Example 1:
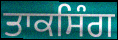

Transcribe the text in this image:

ਤਾਕਸਿੰਗ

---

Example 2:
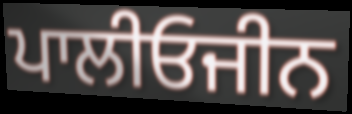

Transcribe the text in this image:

ਪਾਲੀਓਜੀਨ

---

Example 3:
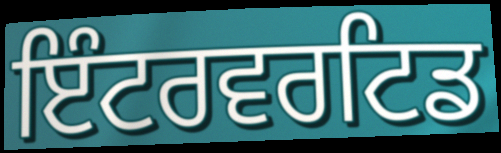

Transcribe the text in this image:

ਇੰਟਰਵਰਟਿਡ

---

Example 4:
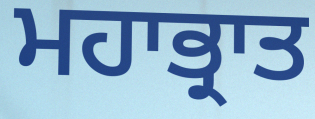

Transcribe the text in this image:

ਮਹਾਭ੍ਰਾਤ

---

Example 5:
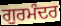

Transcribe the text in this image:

ਗੁਰਮੰਦਰ